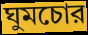
ঘুমচোর